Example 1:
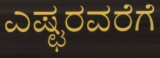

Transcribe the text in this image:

ಎಷ್ಟರವರೆಗೆ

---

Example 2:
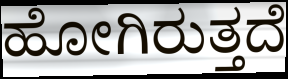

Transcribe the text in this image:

ಹೋಗಿರುತ್ತದೆ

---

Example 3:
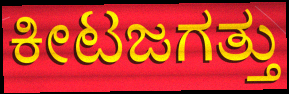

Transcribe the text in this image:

ಕೀಟಜಗತ್ತು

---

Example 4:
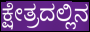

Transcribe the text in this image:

ಕ್ಷೇತ್ರದಲ್ಲಿನ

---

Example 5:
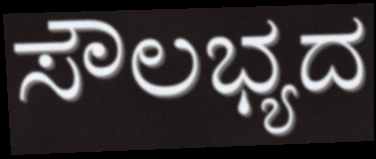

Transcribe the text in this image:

ಸೌಲಭ್ಯದ